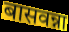
बासवन्ना